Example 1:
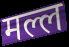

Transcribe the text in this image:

मल्ल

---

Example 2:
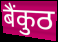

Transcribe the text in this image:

बैंकुठ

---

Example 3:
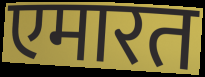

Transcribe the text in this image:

एमारत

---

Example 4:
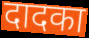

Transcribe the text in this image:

दादका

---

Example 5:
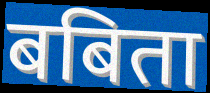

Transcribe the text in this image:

बबिता